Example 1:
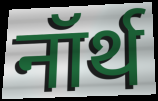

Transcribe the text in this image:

नॉर्थ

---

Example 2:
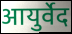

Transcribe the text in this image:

आयुर्वेद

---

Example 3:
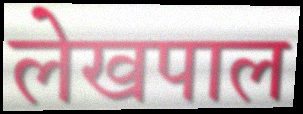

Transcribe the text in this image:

लेखपाल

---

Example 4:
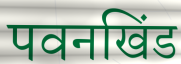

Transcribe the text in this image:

पवनखिंड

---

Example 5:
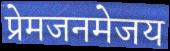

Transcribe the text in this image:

प्रेमजनमेजय